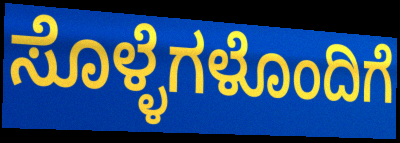
ಸೊಳ್ಳೆಗಳೊಂದಿಗೆ